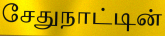
சேதுநாட்டின்